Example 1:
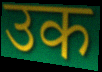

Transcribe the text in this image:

उक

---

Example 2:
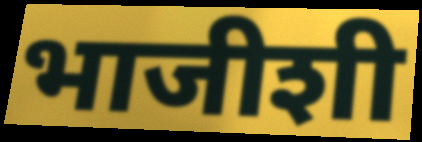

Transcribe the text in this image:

भाजीशी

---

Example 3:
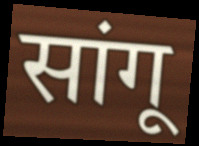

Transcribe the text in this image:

सांगू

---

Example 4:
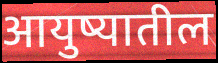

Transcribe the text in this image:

आयुष्यातील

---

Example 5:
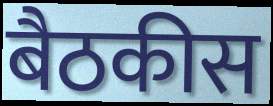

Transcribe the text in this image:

बैठकीस